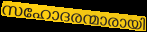
സഹോദരന്മാരായി